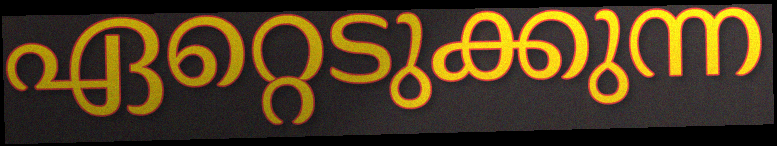
ഏറ്റെടുക്കുന്ന